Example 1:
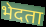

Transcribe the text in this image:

भेदता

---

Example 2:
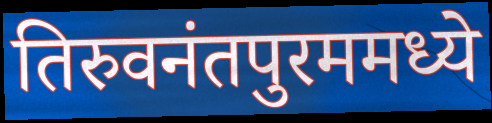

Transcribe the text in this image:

तिरुवनंतपुरममध्ये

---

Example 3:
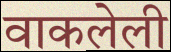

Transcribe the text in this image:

वाकलेली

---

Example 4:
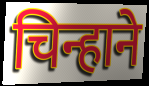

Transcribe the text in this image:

चिन्हाने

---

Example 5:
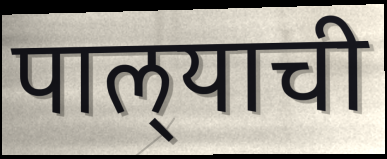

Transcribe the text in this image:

पाल्याची